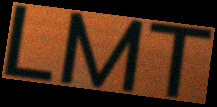
LMT